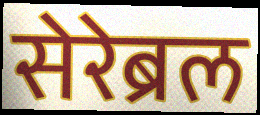
सेरेब्रल